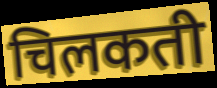
चिलकती